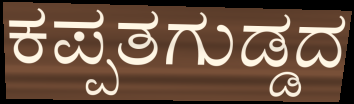
ಕಪ್ಪತಗುಡ್ಡದ